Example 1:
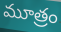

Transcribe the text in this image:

మూత్రం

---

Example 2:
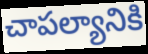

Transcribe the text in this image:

చాపల్యానికి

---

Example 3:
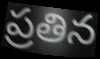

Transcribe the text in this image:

ప్రతిన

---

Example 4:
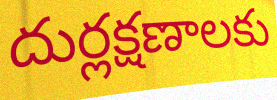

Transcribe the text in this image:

దుర్లక్షణాలకు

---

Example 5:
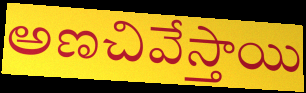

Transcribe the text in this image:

అణచివేస్తాయి